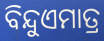
ବିନ୍ଦୁଏମାତ୍ର